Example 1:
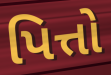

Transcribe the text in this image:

પિત્તો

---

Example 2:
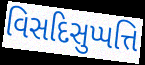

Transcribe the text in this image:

વિસદિસુપ્પત્તિ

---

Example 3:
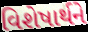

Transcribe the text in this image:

વિશેષાર્થને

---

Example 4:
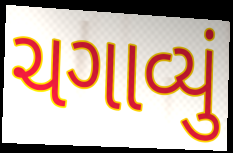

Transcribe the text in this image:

ચગાવ્યું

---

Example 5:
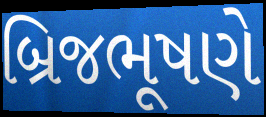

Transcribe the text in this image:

બ્રિજભૂષણે